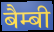
बैम्बी